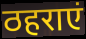
ठहराएं